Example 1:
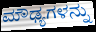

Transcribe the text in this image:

ಮೌಢ್ಯಗಳನ್ನು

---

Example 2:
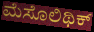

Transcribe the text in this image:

ಮೆಸೊಲಿಥಿಕ್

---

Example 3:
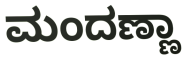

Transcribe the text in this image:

ಮಂದಣ್ಣಾ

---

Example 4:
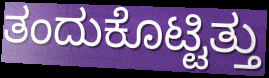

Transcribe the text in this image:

ತಂದುಕೊಟ್ಟಿತ್ತು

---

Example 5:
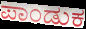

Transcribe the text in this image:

ಪಾಂಡುಕ